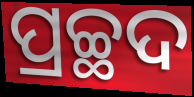
ପ୍ରଚ୍ଛଦ